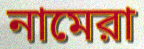
নামেরা